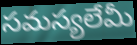
సమస్యలేమీ